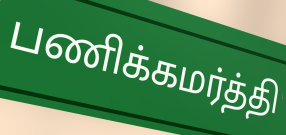
பணிக்கமர்த்தி